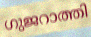
ഗുജറാത്തി